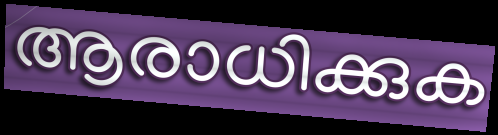
ആരാധിക്കുക